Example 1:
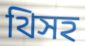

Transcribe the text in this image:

থিসহ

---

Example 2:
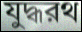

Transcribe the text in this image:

যুদ্ধরথ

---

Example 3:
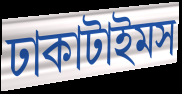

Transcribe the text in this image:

ঢাকাটাইমস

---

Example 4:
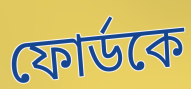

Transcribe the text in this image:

ফোর্ডকে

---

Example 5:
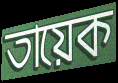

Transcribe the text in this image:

তায়েক